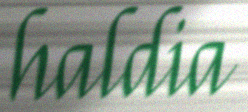
haldia